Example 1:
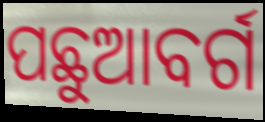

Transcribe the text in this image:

ପଛୁଆବର୍ଗ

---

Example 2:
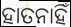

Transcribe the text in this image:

ହାତନାହିଁ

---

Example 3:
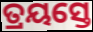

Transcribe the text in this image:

ତ୍ରୟସ୍ତେ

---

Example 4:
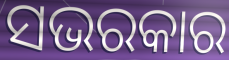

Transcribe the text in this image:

ସଭରକାର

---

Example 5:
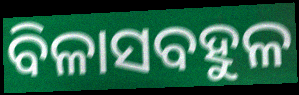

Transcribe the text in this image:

ବିଳାସବହୁଳ